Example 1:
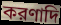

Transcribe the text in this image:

করণাদি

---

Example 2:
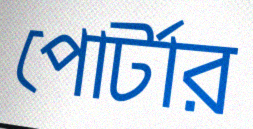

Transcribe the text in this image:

পোর্টার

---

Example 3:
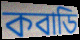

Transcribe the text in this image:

কবাডি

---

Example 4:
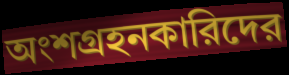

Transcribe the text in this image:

অংশগ্রহনকারিদের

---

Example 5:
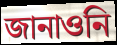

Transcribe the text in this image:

জানাওনি